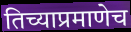
तिच्याप्रमाणेच